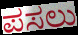
ಪಸಲು